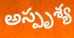
అస్పృశ్య